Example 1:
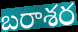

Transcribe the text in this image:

బరాశర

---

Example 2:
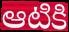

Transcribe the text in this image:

ఆటికి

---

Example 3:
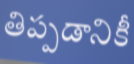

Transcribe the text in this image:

తిప్పడానికీ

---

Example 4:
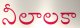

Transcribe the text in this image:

నీలాలకా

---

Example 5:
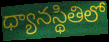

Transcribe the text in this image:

ధ్యానస్థితిలో